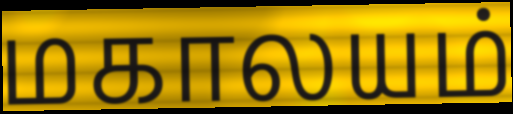
மகாலயம்